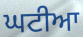
ਘਟੀਆ